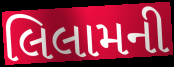
લિલામની